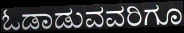
ಓಡಾಡುವವರಿಗೂ